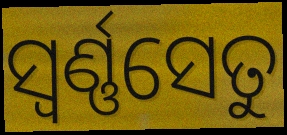
ସ୍ଵର୍ଣ୍ଣସେତୁ